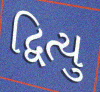
દ્વિત્યુ